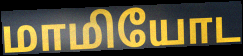
மாமியோட